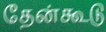
தேன்கூடு